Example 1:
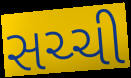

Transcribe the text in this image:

સચ્ચી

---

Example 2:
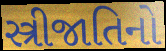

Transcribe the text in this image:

સ્ત્રીજાતિનો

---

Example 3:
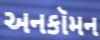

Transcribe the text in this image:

અનકૉમન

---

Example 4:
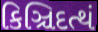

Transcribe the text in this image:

કિઞ્ચિદત્થં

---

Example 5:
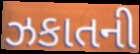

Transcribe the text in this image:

ઝકાતની